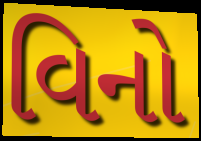
વિનો